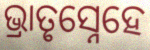
ଭ୍ରାତୃସ୍ନେହେ